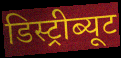
डिस्ट्रीब्यूट